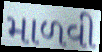
માળવી